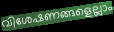
വിശേഷണങ്ങളെല്ലാം